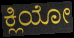
ಕ್ಲಿಯೋ